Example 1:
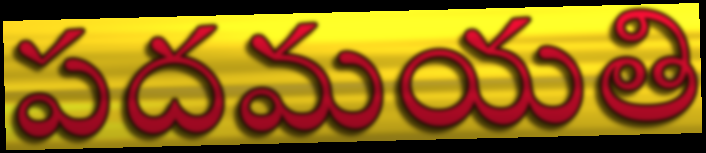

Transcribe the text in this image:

పదమయతి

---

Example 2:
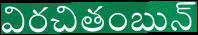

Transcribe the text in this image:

విరచితంబున్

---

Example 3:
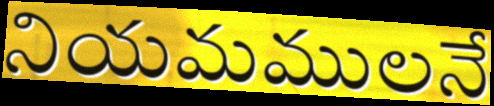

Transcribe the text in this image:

నియమములనే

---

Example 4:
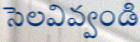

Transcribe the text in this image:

సెలవివ్వండి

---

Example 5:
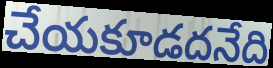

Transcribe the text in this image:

చేయకూడదనేది